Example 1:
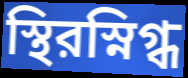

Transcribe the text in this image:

স্থিরস্নিগ্ধ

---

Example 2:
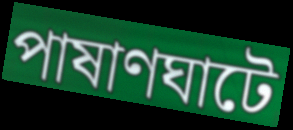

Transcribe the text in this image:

পাষাণঘাটে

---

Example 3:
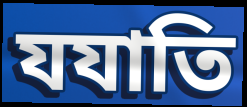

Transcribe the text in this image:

যযাতি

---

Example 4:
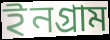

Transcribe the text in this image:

ইনগ্রাম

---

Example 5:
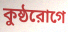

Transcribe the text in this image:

কুষ্ঠরোগে